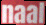
naal